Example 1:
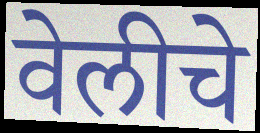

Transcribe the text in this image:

वेलीचे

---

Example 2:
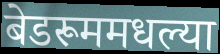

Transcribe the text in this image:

बेडरूममधल्या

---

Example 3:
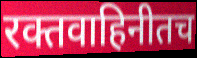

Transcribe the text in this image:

रक्तवाहिनीतच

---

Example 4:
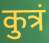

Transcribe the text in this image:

कुत्रं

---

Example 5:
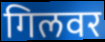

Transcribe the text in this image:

गिलवर